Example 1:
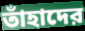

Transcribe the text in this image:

তাঁহাদের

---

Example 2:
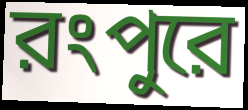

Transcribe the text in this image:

রংপুরে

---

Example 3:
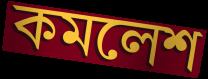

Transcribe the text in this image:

কমলেশ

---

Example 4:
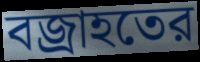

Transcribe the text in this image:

বজ্রাহতের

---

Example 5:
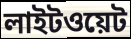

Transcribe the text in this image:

লাইটওয়েট